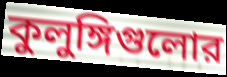
কুলুঙ্গিগুলোর